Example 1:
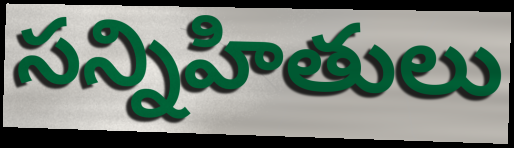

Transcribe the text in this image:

సన్నిహితులు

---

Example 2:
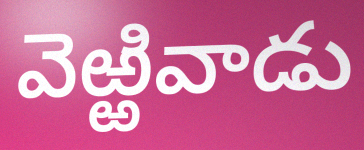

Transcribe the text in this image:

వెఱ్ఱివాడు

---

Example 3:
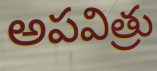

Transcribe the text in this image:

అపవిత్రు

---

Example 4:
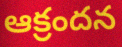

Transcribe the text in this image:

ఆక్రందన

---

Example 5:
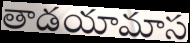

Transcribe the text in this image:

తాడయామాస